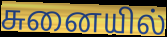
சுனையில்